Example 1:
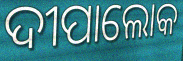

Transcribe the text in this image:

ଦୀପାଲୋକ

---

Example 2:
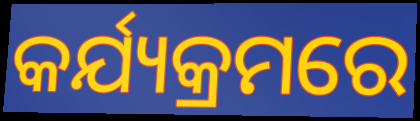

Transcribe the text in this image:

କର୍ଯ୍ୟକ୍ରମରେ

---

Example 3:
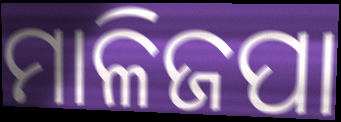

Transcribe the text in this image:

ମାଳିଜପା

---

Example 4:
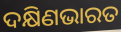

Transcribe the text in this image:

ଦକ୍ଷିଣଭାରତ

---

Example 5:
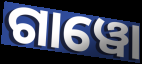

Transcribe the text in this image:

ଗାୱୋ